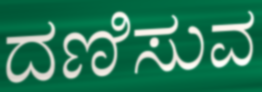
ದಣಿಸುವ